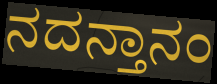
ನದನ್ತಾನಂ